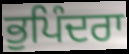
ਭੁਪਿੰਦਰਾ